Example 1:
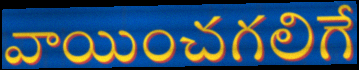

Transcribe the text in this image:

వాయించగలిగే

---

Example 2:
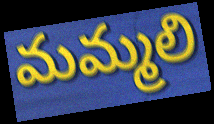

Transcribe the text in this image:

మమ్మలి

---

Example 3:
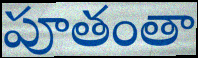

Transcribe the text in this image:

పూతంతా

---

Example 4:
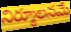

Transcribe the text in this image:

నిర్మూలనమే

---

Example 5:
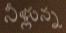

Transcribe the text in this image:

నీళ్లున్న